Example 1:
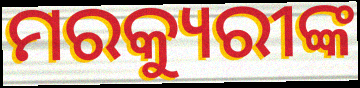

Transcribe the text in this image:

ମରକ୍ୟୁରୀଙ୍କ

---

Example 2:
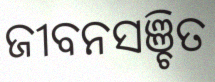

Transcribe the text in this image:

ଜୀବନସଞ୍ଚିତ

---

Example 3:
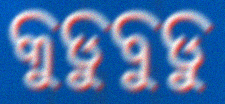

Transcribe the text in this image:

କୁଡୁବୁଡୁ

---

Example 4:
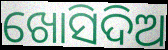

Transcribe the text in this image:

ଖୋସିଦିଅ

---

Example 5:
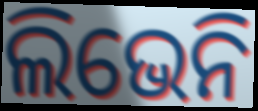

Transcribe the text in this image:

ଲିଭେନି